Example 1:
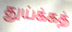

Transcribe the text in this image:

துய்க்கத்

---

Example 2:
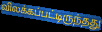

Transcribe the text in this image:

விலக்கப்பட்டிருந்தது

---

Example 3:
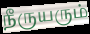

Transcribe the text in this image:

நீருயரும்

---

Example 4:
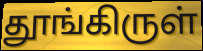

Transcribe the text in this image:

தூங்கிருள்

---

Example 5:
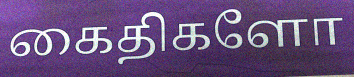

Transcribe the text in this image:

கைதிகளோ